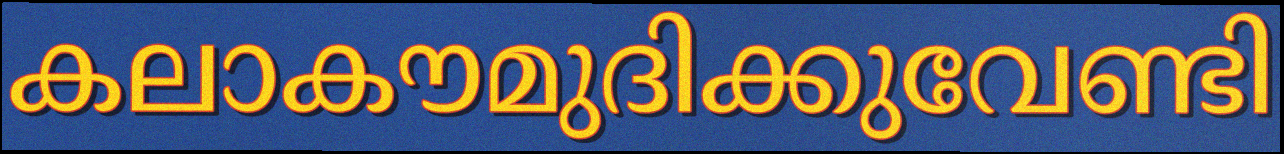
കലാകൗമുദിക്കുവേണ്ടി